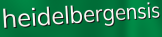
heidelbergensis